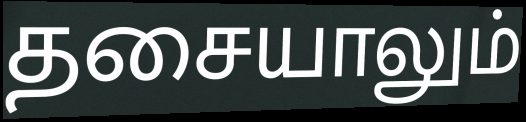
தசையாலும்